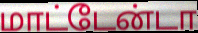
மாட்டேன்டா